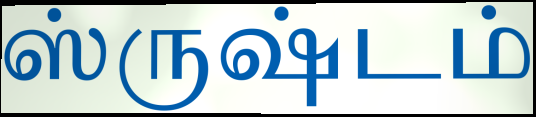
ஸ்ருஷ்டம்